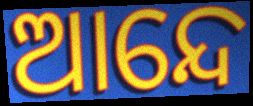
ଆନ୍ଦେ